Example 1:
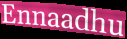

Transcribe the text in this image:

Ennaadhu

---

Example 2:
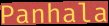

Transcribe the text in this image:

Panhala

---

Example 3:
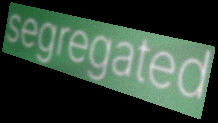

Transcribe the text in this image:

segregated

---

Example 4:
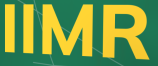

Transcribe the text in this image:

IIMR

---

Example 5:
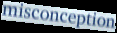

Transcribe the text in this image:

misconception